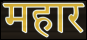
महार